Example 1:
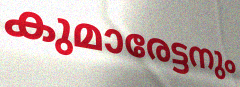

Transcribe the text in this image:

കുമാരേട്ടനും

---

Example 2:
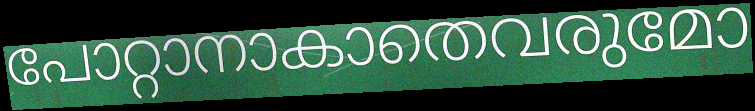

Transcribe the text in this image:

പോറ്റാനാകാതെവരുമോ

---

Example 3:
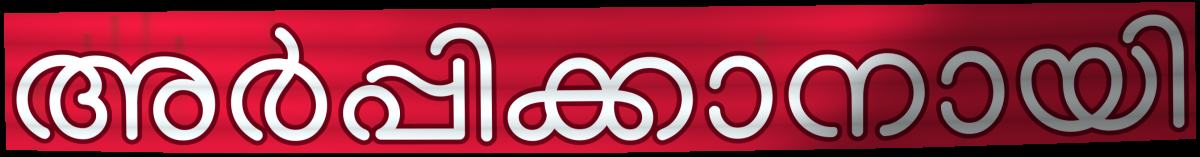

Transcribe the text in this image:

അർപ്പിക്കാനായി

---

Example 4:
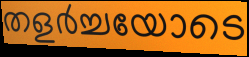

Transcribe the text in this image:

തളർച്ചയോടെ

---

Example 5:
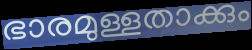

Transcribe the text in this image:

ഭാരമുള്ളതാക്കും